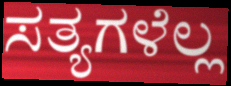
ಸತ್ಯಗಳೆಲ್ಲ